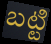
బట్టి